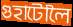
গুহাটোলৈ